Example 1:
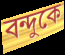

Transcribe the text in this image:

বন্দুকে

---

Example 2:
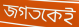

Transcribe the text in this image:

জগতকেই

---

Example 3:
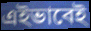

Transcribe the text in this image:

এইভাবেই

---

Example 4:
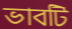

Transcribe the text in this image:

ভাবটি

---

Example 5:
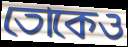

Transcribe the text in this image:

তোকেও